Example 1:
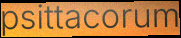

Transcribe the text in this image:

psittacorum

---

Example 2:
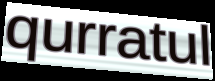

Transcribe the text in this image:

qurratul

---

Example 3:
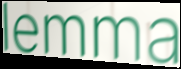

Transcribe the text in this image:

lemma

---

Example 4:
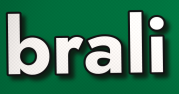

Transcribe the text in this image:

brali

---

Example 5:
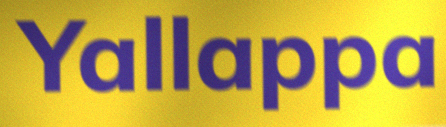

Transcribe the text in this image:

Yallappa